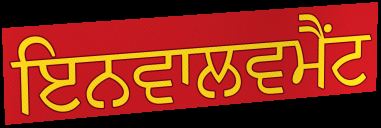
ਇਨਵਾਲਵਮੈਂਟ